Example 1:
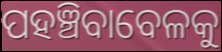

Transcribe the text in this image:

ପହଞ୍ଚିବାବେଳକୁ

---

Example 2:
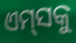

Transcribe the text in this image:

ଏମ୍‌ସକୁ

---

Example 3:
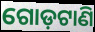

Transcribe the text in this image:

ଗୋଡ଼ଟାଣି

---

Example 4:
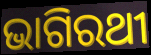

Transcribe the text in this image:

ଭାଗିରଥୀ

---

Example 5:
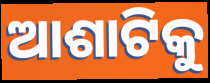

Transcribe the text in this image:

ଆଶାଟିକୁ